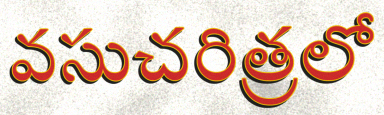
వసుచరిత్రలో